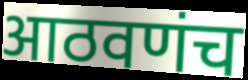
आठवणंच